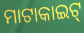
ମାଟାକାଇଟ୍